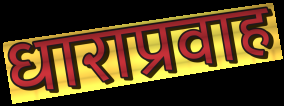
धाराप्रवाह